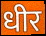
धीर